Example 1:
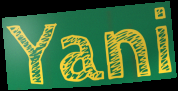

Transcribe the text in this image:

Yani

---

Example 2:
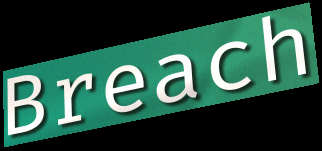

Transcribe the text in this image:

Breach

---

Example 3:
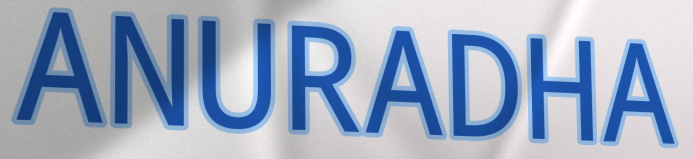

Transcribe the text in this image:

ANURADHA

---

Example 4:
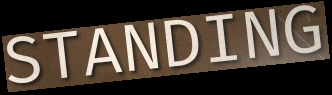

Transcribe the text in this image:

STANDING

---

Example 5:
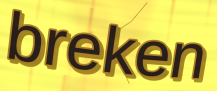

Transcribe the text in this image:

breken